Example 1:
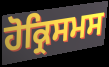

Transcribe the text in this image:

ਹੋਕ੍ਰਿਸਮਸ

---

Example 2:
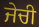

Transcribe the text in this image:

ਜੇਚੀ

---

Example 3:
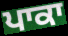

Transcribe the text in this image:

ਪਾਕਾ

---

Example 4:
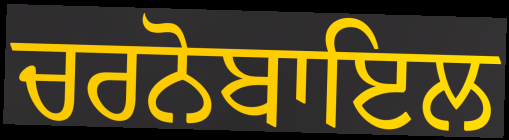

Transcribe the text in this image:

ਚਰਨੋਬਾਇਲ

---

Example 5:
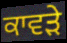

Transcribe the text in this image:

ਕਾਵੜੇ